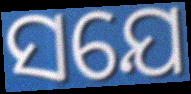
ସଯେ